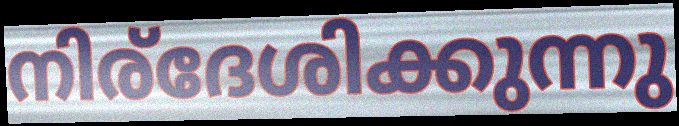
നിര്ദേശിക്കുന്നു